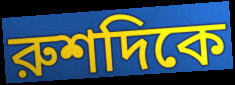
রুশদিকে